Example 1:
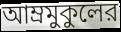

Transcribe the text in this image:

আম্রমুকুলের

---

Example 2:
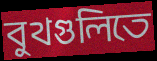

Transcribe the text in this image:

বুথগুলিতে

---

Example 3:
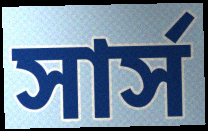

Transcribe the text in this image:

সার্স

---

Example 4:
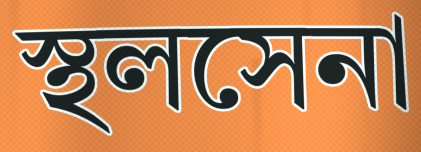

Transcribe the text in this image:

স্থলসেনা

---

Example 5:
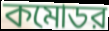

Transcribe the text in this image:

কমোডর